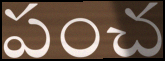
పంచ